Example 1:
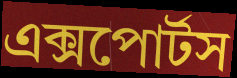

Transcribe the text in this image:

এক্সপোর্টস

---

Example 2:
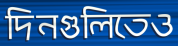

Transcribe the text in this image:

দিনগুলিতেও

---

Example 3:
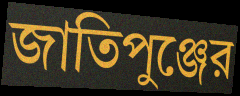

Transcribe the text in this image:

জাতিপুঞ্জের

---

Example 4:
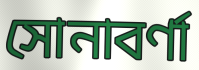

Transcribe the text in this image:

সোনাবর্ণা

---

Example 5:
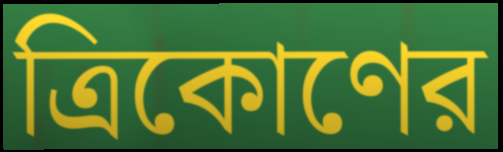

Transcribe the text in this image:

ত্রিকোণের